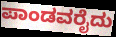
ಪಾಂಡವರೈದು